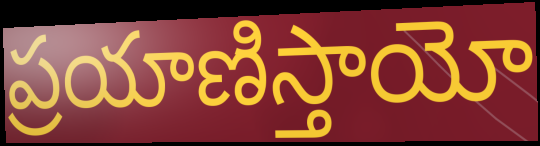
ప్రయాణిస్తాయో